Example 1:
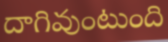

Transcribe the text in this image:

దాగివుంటుంది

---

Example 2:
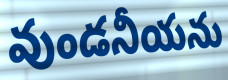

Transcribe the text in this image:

వుండనీయను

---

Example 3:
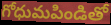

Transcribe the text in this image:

గోధుమపిండితో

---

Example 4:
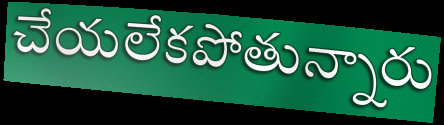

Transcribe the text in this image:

చేయలేకపోతున్నారు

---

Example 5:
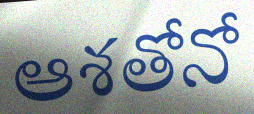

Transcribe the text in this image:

ఆశతోనో